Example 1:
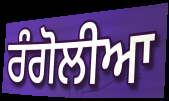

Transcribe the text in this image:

ਰੰਗੋਲੀਆ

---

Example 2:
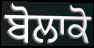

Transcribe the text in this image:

ਬੋਲਾਕੋ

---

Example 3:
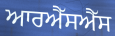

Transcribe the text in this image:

ਆਰਐੱਸਐੱਸ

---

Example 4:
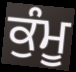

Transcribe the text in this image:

ਕੁੰਮੂ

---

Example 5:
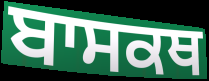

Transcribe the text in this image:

ਬਾਸਕਥ